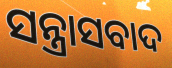
ସନ୍ତ୍ରାସବାଦ